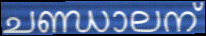
ചണ്ഡാലന്